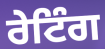
ਰੇਟਿੰਗ